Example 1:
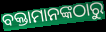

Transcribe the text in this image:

ବକ୍ତାମାନଙ୍କଠାରୁ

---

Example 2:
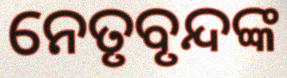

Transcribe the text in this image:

ନେତୃବୃନ୍ଦଙ୍କ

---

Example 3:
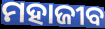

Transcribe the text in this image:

ମହାଜୀବ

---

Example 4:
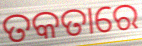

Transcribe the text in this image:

ତକତାରେ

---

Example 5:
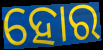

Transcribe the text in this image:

ହୋର